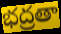
భద్రతా